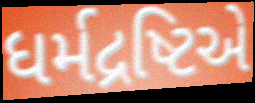
ધર્મદ્રષ્ટિએ